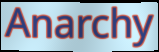
Anarchy